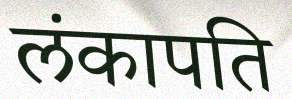
लंकापति